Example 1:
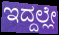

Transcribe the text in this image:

ಇದ್ದಲ್ಲೇ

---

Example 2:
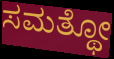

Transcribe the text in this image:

ಸಮತ್ಥೋ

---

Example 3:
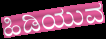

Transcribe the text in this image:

ಹಿಡಿಯುವ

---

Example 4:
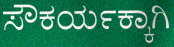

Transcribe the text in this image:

ಸೌಕರ್ಯಕ್ಕಾಗಿ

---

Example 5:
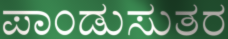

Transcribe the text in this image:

ಪಾಂಡುಸುತರ